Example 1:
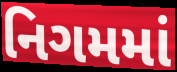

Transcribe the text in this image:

નિગમમાં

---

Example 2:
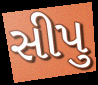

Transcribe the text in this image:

સીપુ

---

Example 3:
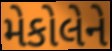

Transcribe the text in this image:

મેકોલેને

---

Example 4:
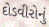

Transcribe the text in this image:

દોડવીરોનું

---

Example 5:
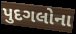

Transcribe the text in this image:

પુદગલોના